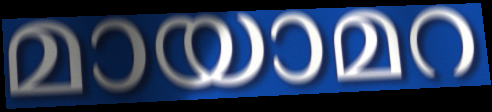
മായാമറ